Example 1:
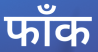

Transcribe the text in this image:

फाँक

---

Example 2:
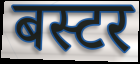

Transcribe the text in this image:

बस्टर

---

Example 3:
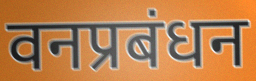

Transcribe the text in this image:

वनप्रबंधन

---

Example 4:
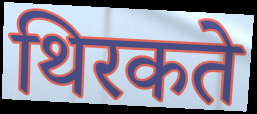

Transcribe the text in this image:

थिरकते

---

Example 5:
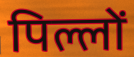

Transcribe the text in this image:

पिल्लों